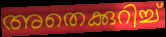
അതെക്കുറിച്ച്